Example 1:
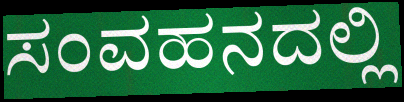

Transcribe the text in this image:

ಸಂವಹನದಲ್ಲಿ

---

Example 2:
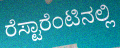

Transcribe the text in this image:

ರೆಸ್ಟಾರೆಂಟಿನಲ್ಲಿ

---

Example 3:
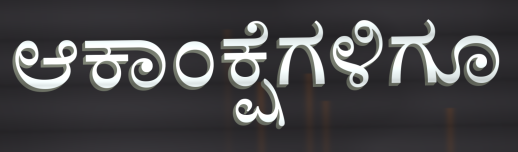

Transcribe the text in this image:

ಆಕಾಂಕ್ಷೆಗಳಿಗೂ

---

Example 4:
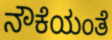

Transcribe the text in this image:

ನೌಕೆಯಂತೆ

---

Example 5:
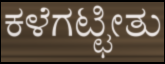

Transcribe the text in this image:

ಕಳೆಗಟ್ಟೀತು